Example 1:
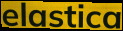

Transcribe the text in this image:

elastica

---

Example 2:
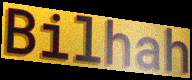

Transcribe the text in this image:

Bilhah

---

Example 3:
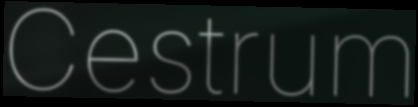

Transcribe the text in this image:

Cestrum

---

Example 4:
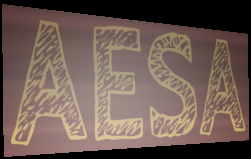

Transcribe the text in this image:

AESA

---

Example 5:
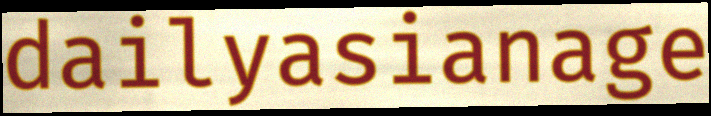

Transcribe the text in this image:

dailyasianage